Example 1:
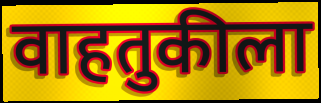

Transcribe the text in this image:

वाहतुकीला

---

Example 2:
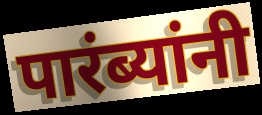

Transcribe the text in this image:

पारंब्यांनी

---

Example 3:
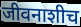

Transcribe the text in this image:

जीवनाशीच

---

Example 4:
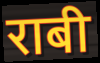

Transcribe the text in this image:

राबी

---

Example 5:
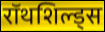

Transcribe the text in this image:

रॉथशिल्ड्स